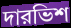
দারভিশ